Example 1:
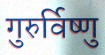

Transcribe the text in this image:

गुरुर्विष्णु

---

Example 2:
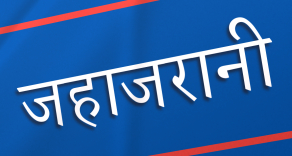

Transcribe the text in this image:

जहाजरानी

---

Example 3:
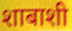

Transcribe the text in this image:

शाबाशी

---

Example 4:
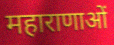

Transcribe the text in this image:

महाराणाओं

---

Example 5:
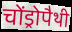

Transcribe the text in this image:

चोंड्रोपैथी